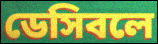
ডেসিবলে